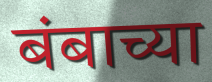
बंबाच्या